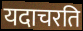
यदाचरति